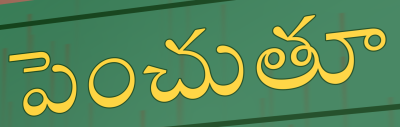
పెంచుతూ